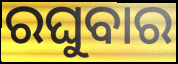
ରଘୁବାର